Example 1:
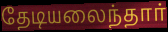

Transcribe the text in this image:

தேடியலைந்தார்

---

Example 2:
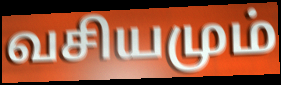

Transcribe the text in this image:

வசியமும்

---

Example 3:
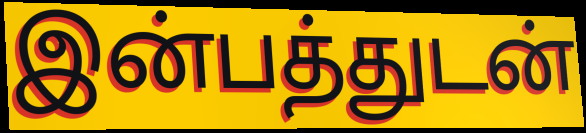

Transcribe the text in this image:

இன்பத்துடன்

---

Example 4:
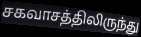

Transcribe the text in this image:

சகவாசத்திலிருந்து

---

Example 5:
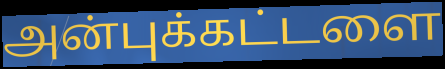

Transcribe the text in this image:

அன்புக்கட்டளை